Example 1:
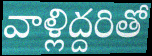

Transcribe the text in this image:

వాళ్లిద్దరితో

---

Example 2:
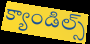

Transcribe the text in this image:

క్యాండిల్స్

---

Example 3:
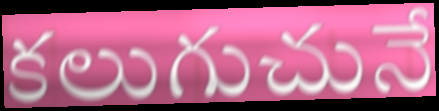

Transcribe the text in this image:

కలుగుచునే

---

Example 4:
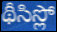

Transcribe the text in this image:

థీసిస్లో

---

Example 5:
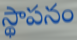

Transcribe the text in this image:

స్థాపనం